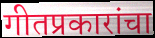
गीतप्रकारांचा